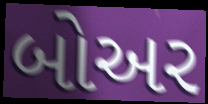
બોઅર